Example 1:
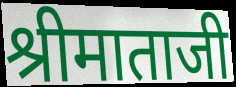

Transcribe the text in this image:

श्रीमाताजी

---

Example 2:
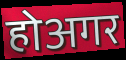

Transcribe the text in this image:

होअगर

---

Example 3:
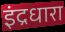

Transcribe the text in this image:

इंद्रधारा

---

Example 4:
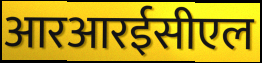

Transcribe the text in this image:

आरआरईसीएल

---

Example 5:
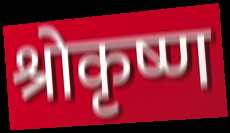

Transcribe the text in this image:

श्रोकृष्ण